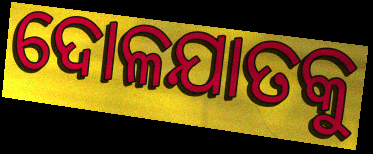
ଦୋଳଯାତକୁ